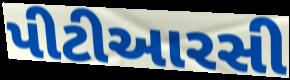
પીટીઆરસી